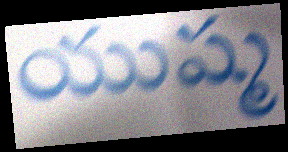
యుష్మ